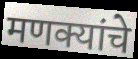
मणक्यांचे